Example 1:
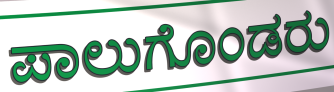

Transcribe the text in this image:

ಪಾಲುಗೊಂಡರು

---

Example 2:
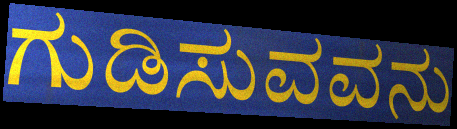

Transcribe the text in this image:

ಗುಡಿಸುವವನು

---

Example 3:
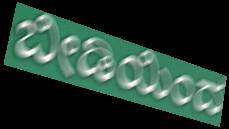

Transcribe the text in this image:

ಬೀಡಿಯಿಂದ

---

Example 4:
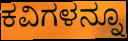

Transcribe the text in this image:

ಕವಿಗಳನ್ನೂ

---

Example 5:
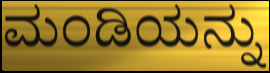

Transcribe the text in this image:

ಮಂಡಿಯನ್ನು